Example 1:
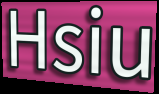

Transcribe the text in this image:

Hsiu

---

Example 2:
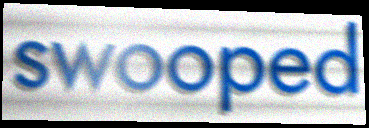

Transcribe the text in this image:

swooped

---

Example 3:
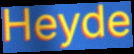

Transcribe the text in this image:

Heyde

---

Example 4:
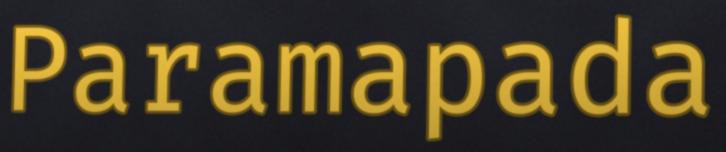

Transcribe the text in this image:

Paramapada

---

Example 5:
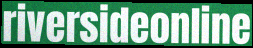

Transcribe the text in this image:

riversideonline